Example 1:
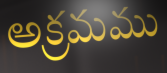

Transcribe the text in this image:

అక్రమము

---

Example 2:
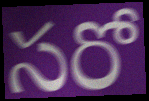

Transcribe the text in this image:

సరో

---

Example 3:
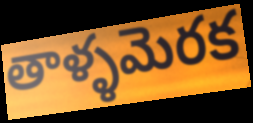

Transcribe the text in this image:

తాళ్ళమెరక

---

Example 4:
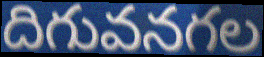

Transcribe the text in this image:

దిగువనగల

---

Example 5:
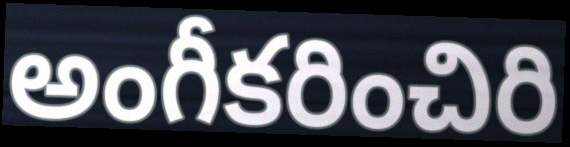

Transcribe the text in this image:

అంగీకరించిరి